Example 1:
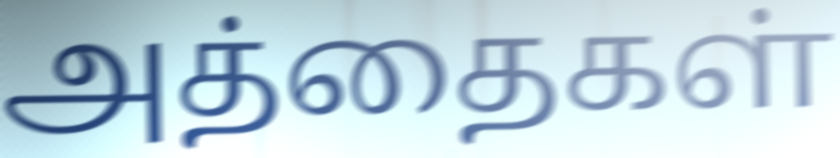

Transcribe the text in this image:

அத்தைகள்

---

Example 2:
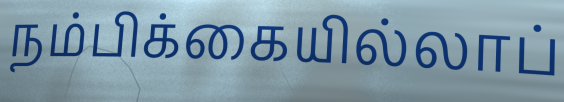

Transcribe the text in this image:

நம்பிக்கையில்லாப்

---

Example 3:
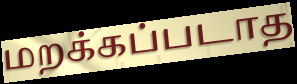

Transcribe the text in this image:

மறக்கப்படாத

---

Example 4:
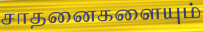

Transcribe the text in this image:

சாதனைகளையும்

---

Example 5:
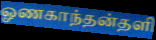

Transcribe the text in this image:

ஓணகாந்தன்தளி